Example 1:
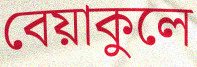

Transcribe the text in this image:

বেয়াকুলে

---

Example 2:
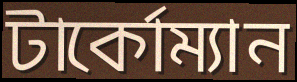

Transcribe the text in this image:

টার্কোম্যান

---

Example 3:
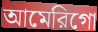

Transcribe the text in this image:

আমেরিগো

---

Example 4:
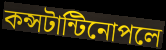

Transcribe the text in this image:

কন্সটান্টিনোপলে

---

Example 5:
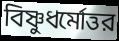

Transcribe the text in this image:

বিষ্ণুধর্মোত্তর